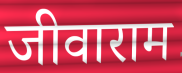
जीवाराम